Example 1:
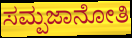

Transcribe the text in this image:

ಸಮ್ಪಜಾನೋತಿ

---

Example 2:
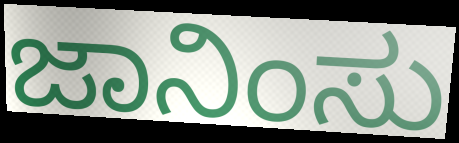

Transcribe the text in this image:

ಜಾನಿಂಸು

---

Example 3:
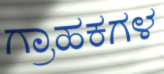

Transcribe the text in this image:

ಗ್ರಾಹಕಗಳ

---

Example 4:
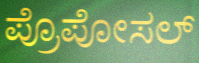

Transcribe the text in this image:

ಪ್ರೊಪೋಸಲ್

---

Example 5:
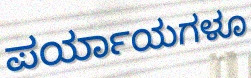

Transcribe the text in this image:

ಪರ್ಯಾಯಗಳೂ